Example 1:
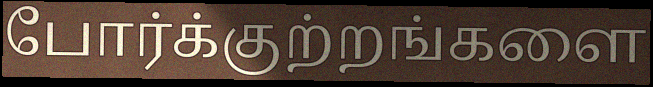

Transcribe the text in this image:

போர்க்குற்றங்களை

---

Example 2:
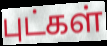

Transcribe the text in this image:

புட்கள்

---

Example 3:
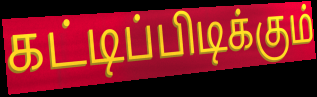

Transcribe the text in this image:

கட்டிப்பிடிக்கும்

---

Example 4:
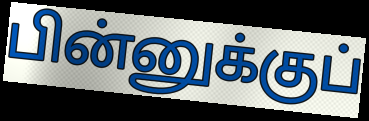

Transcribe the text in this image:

பின்னுக்குப்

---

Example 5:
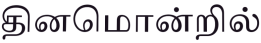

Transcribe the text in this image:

தினமொன்றில்